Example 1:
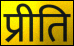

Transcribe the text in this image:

प्रीति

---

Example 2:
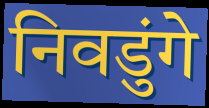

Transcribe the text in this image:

निवडुंगे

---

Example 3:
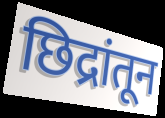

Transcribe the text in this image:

छिद्रांतून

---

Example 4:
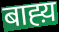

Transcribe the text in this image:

बाह्य़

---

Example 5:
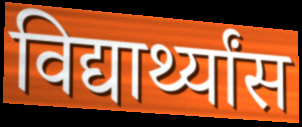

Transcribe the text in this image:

विद्यार्थ्यांस